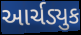
આર્ચડ્યુક